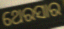
ଥେରସାର